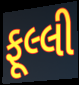
ફૂલ્લી